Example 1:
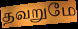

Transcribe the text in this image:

தவறுமே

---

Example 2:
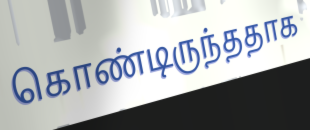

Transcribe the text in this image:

கொண்டிருந்ததாக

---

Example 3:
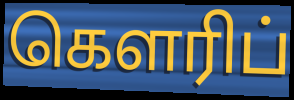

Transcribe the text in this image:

கௌரிப்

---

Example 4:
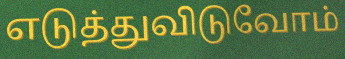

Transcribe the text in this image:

எடுத்துவிடுவோம்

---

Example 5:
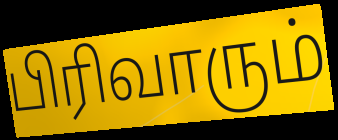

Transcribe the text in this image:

பிரிவாரும்